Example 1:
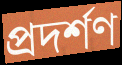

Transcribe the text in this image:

প্ৰদৰ্শণ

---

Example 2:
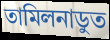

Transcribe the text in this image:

তামিলনাডুত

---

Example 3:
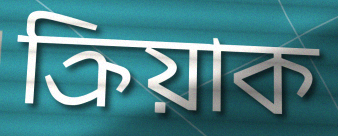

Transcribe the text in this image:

ক্ৰিয়াক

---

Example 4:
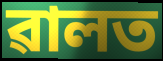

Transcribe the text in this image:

ৱালত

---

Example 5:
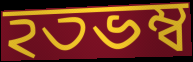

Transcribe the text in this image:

হতভম্ব